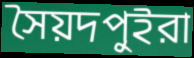
সৈয়দপুইরা